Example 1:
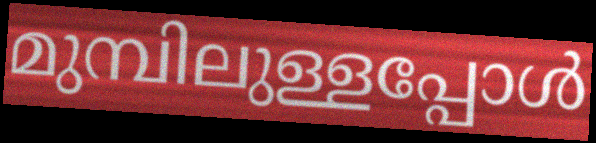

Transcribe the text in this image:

മുമ്പിലുള്ളപ്പോൾ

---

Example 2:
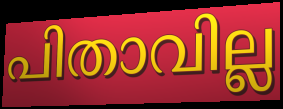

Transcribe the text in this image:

പിതാവില്ല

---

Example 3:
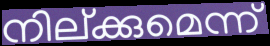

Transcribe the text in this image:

നില്ക്കുമെന്ന്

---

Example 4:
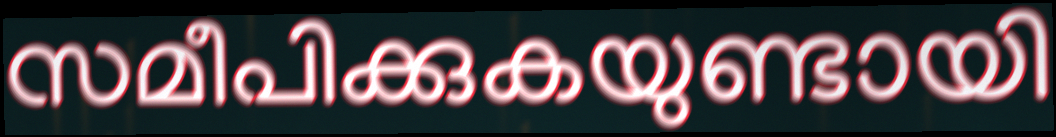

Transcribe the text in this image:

സമീപിക്കുകയുണ്ടായി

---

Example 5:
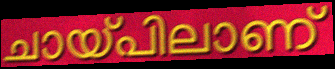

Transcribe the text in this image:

ചായ്പിലാണ്